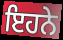
ਇਹਨੇ